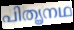
പിതൄനഥ